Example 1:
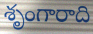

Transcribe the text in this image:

శృంగారాది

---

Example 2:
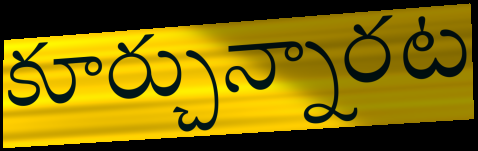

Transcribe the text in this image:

కూర్చున్నారట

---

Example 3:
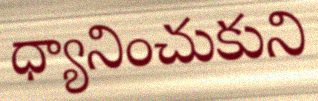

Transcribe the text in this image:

ధ్యానించుకుని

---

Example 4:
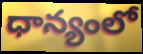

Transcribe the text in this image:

ధాన్యంలో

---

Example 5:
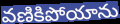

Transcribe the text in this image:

వణికిపోయాను